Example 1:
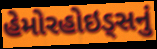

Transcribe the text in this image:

હેમોરહોઇડ્સનું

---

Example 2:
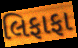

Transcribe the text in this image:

લિફાફા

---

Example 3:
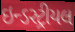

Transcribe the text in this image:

ઇન્ડસ્ટ્રીયલ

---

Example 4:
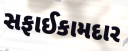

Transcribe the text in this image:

સફાઈકામદાર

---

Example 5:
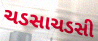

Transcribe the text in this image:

ચડસાચડસી